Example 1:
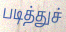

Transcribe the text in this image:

படித்துச்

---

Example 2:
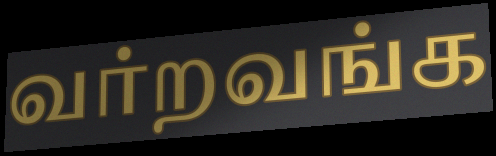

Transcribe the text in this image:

வர்றவங்க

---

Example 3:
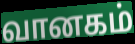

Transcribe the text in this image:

வானகம்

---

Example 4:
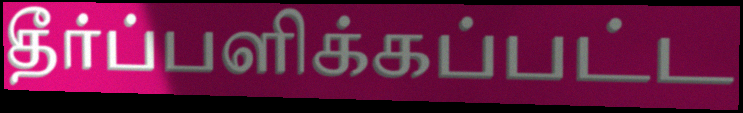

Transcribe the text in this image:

தீர்ப்பளிக்கப்பட்ட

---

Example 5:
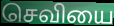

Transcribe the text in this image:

செவியை